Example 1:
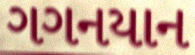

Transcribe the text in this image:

ગગનયાન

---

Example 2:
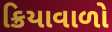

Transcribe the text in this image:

ક્રિયાવાળો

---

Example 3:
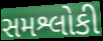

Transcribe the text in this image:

સમશ્લોકી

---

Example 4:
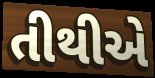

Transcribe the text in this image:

તીથીએ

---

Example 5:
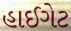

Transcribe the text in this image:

હાઈગેટ